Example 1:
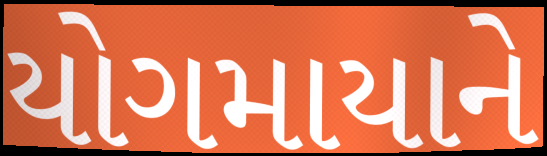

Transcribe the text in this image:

યોગમાયાને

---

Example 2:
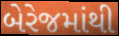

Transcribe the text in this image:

બેરેજમાંથી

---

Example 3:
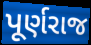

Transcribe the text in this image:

પૂર્ણરાજ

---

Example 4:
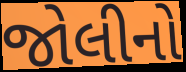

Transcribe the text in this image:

જોલીનો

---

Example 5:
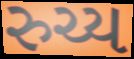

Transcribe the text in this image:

રુચ્ય